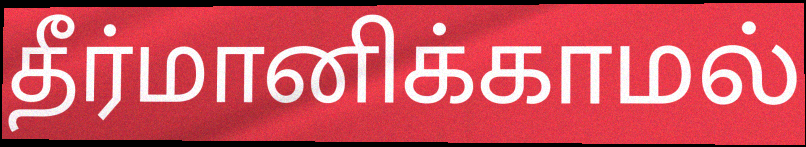
தீர்மானிக்காமல்